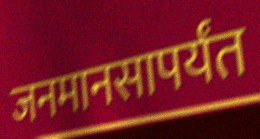
जनमानसापर्यंत